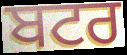
ਬਟਰ